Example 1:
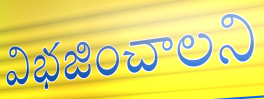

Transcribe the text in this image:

విభజించాలని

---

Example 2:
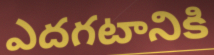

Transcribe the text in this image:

ఎదగటానికి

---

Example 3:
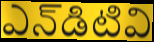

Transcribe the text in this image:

ఎన్‌డిటివి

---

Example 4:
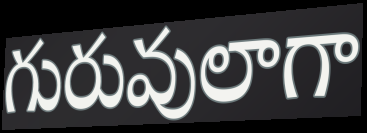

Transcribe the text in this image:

గురువులాగా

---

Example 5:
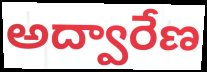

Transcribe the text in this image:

అద్వారేణ